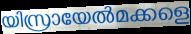
യിസ്രായേൽമക്കളെ